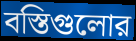
বস্তিগুলোর